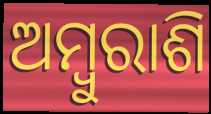
ଅମ୍ୱୁରାଶି